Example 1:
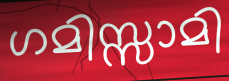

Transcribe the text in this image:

ഗമിസ്സാമി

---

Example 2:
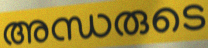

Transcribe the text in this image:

അന്ധരുടെ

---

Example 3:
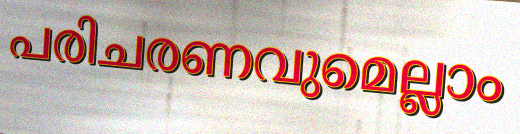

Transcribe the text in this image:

പരിചരണവുമെല്ലാം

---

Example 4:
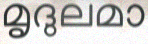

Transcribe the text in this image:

മൃദുലമാ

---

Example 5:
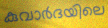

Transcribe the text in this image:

കുവാർദയിലെ